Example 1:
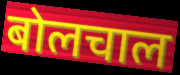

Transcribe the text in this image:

बोलचाल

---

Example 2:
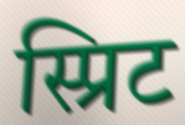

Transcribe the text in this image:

स्प्रिट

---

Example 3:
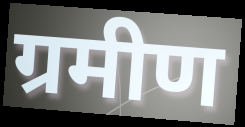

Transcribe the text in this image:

ग्रमीण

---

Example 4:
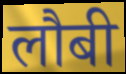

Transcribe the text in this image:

लौबी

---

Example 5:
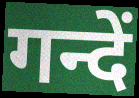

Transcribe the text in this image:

गन्दें